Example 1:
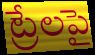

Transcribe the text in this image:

ట్రేలపై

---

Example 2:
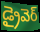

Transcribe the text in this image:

డ్రైవెర్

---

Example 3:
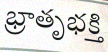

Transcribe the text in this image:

భ్రాతృభక్తి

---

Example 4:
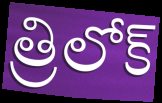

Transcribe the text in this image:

త్రిలోక్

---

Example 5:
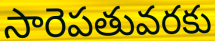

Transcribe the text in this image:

సారెపతువరకు